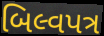
બિલ્વપત્ર